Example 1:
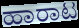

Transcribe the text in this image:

ಹಾರಾಟ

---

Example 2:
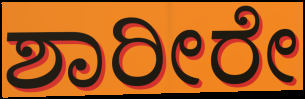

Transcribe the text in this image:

ಶಾರೀರೇ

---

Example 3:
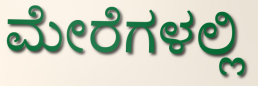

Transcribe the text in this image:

ಮೇರೆಗಳಲ್ಲಿ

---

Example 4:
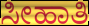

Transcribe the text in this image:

ಸೀಹಾತಿ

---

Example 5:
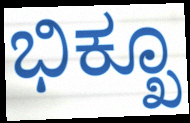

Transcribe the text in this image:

ಭಿಕ್ಖೂ